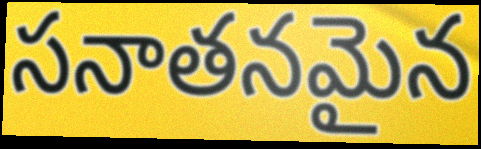
సనాతనమైన